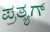
ಪ್ರತ್ಯಗ್